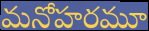
మనోహరమూ